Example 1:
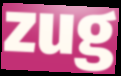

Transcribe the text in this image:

zug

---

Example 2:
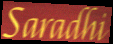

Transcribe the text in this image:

Saradhi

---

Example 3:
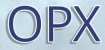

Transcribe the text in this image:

OPX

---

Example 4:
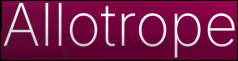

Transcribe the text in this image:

Allotrope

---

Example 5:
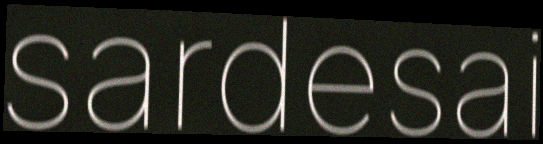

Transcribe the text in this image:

sardesai